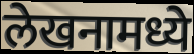
लेखनामध्ये